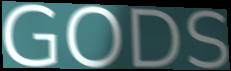
GODS